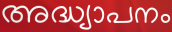
അദ്ധ്യാപനം